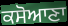
ਕਸੋਆਣਾ